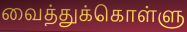
வைத்துக்கொள்ளு